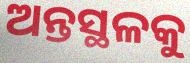
ଅନ୍ତସ୍ଥଳକୁ